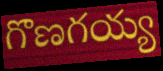
గొణగయ్య